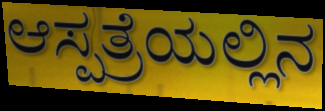
ಆಸ್ಪತ್ರೆಯಲ್ಲಿನ